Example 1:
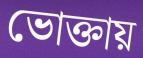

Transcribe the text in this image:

ভোক্তায়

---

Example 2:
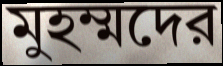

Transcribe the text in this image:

মুহম্মদের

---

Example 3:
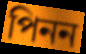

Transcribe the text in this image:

পিনন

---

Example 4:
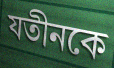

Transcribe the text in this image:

যতীনকে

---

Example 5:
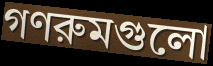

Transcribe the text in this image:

গণরুমগুলো